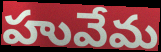
హువేమ